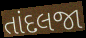
તાંદલજા